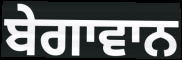
ਬੇਗਾਵਾਨ